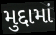
મુદ્દામાં